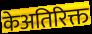
केअतिरिक्त